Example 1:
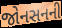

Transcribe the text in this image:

જોનસનની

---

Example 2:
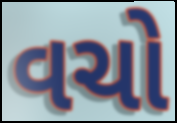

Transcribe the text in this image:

વચો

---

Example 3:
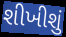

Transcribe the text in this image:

શીખીશું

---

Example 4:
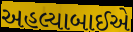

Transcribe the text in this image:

અહલ્યાબાઈએ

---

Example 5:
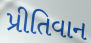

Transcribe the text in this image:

પ્રીતિવાન